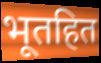
भूतहित